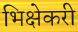
भिक्षेकरी